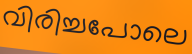
വിരിച്ചപോലെ